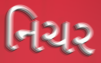
નિચર